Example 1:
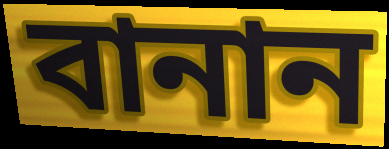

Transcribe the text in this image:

বানান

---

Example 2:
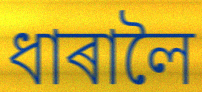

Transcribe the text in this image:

ধাৰালৈ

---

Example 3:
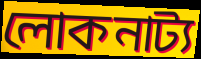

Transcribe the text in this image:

লোকনাট্য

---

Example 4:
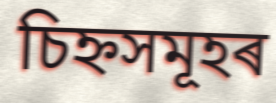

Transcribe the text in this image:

চিহ্নসমূহৰ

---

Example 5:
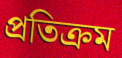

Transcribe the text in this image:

প্ৰতিক্ৰম